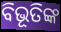
ବିଭୂତିଙ୍କ